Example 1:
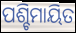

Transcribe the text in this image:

ପଶ୍ଚିମାୟିତ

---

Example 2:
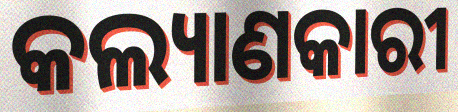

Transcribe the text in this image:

କଲ୍ୟାଣକାରୀ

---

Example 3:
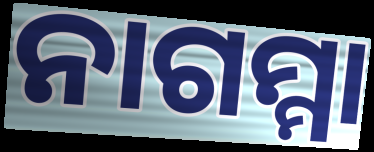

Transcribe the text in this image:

ନାଗମ୍ମା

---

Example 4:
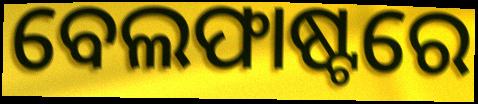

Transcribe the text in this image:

ବେଲଫାଷ୍ଟରେ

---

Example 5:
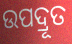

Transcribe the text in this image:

ଉପଦ୍ରୂତ